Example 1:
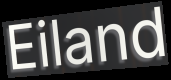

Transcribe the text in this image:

Eiland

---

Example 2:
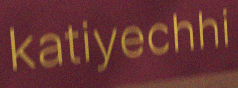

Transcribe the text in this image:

katiyechhi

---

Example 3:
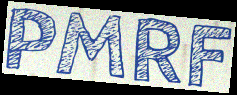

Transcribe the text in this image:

PMRF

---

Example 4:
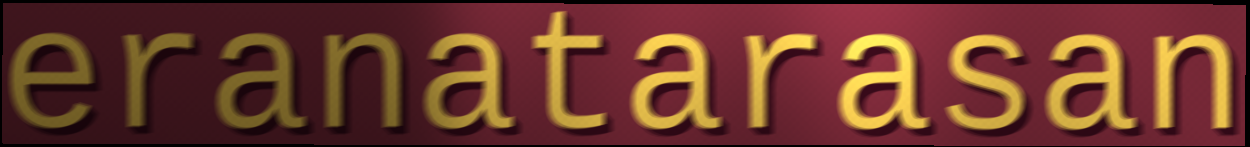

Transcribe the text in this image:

eranatarasan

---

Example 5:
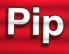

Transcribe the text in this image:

Pip